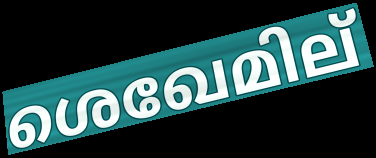
ശെഖേമില്